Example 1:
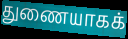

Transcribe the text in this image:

துணையாகக்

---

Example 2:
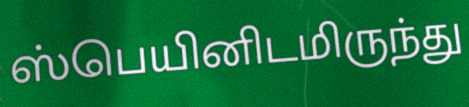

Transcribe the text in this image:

ஸ்பெயினிடமிருந்து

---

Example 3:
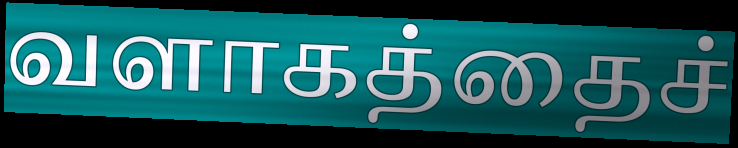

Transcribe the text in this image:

வளாகத்தைச்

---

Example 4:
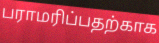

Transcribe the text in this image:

பராமரிப்பதற்காக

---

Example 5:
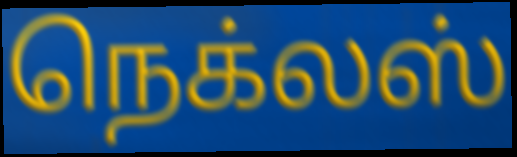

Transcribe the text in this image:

நெக்லஸ்